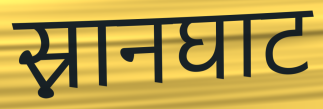
स्नानघाट